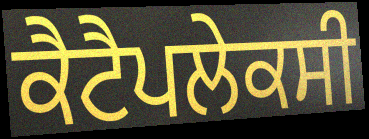
ਕੈਟੈਪਲੇਕਸੀ